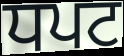
ਧਪਟ